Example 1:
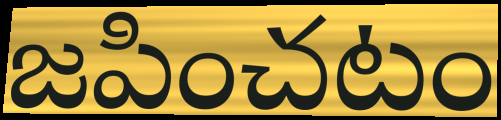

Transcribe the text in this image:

జపించటం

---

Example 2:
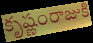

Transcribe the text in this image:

కృష్ణంరాజుకి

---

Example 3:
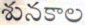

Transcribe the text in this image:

శునకాల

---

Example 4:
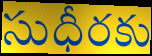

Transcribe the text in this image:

సుధీరకు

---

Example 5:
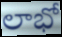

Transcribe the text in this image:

లాభో